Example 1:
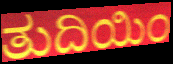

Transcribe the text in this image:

ತುದಿಯಿಂ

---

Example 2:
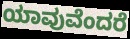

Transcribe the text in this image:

ಯಾವುವೆಂದರೆ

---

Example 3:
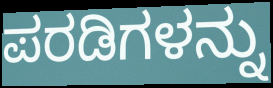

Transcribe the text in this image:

ಪರಡಿಗಳನ್ನು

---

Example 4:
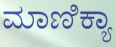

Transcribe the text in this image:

ಮಾಣಿಕ್ಯಾ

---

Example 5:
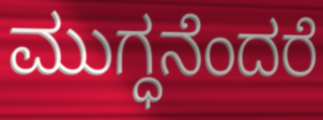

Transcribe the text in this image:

ಮುಗ್ಧನೆಂದರೆ